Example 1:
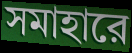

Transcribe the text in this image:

সমাহারে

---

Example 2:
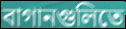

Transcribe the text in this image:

বাগানগুলিতে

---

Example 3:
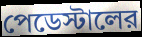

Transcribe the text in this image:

পেডেস্টালের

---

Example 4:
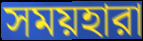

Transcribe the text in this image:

সময়হারা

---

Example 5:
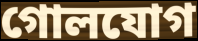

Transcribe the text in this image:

গোলযোগ